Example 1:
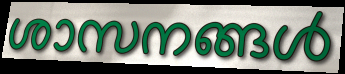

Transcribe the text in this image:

ശാസനങ്ങൾ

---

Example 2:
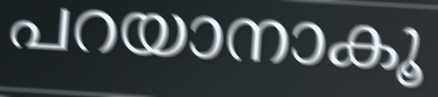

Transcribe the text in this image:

പറയാനാകൂ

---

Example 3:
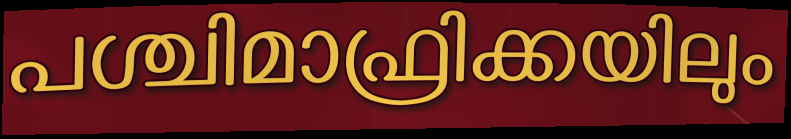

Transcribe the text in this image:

പശ്ചിമാഫ്രിക്കയിലും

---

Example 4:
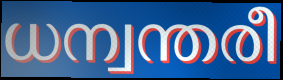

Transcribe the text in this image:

ധന്വന്തരീ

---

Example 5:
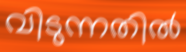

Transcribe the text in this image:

വിടുന്നതിൽ